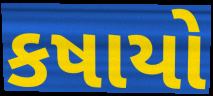
કષાયો